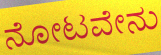
ನೋಟವೇನು